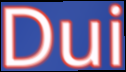
Dui